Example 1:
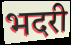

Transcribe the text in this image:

भदरी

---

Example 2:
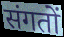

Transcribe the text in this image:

संगतों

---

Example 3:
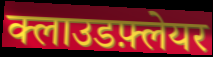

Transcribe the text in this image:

क्लाउडफ़्लेयर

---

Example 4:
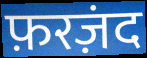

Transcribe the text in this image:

फ़रज़ंद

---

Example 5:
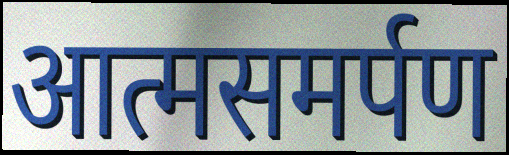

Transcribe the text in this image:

आत्मसमर्पण